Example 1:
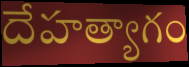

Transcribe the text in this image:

దేహత్యాగం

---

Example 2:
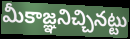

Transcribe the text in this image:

మీకాజ్ఞనిచ్చినట్టు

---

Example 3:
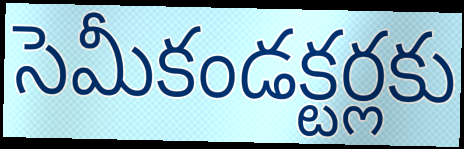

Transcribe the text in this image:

సెమీకండక్టర్లకు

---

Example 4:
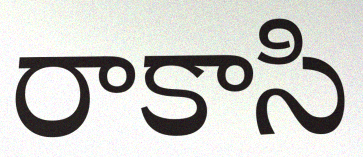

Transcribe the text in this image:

రాకాసి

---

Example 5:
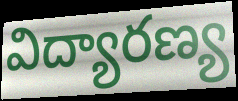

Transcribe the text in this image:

విద్యారణ్య